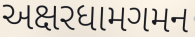
અક્ષરધામગમન